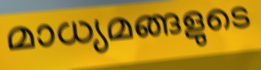
മാധ്യമങ്ങളുടെ